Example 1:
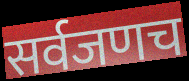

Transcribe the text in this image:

सर्वजणच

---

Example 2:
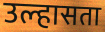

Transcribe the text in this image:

उल्हासता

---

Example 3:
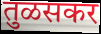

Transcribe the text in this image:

तुळसकर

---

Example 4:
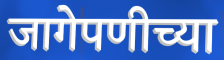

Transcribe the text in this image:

जागेपणीच्या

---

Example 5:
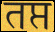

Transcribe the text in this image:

तप्त